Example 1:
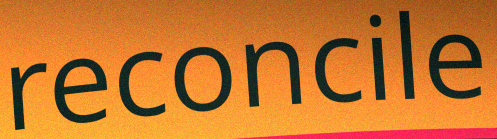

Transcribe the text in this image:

reconcile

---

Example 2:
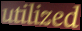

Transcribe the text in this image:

utilized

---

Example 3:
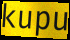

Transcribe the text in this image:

kupu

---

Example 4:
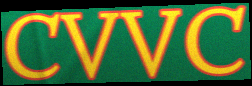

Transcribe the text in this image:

CVVC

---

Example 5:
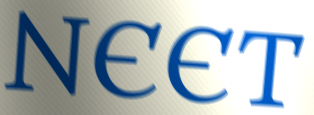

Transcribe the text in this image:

NEET